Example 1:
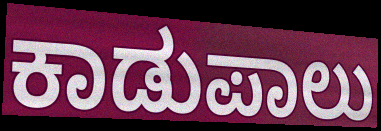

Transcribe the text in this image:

ಕಾಡುಪಾಲು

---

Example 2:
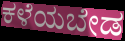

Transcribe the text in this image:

ಕಳೆಯಬೇಡ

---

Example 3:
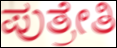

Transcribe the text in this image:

ಪುತ್ರೇತಿ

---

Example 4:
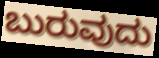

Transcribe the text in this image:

ಬುರುವುದು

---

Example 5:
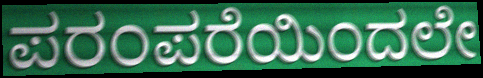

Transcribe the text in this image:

ಪರಂಪರೆಯಿಂದಲೇ